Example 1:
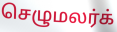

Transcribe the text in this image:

செழுமலர்க்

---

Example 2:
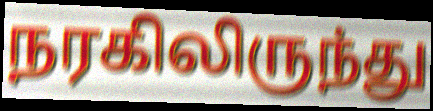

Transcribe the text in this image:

நரகிலிருந்து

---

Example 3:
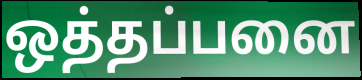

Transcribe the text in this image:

ஒத்தப்பனை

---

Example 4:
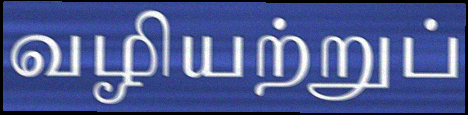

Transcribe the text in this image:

வழியற்றுப்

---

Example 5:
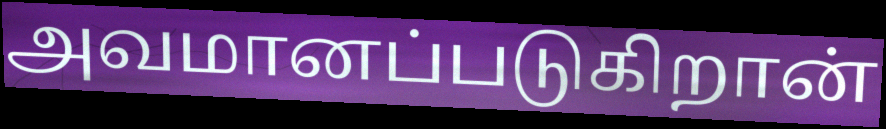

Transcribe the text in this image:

அவமானப்படுகிறான்